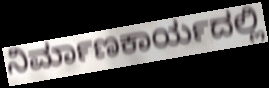
ನಿರ್ಮಾಣಕಾರ್ಯದಲ್ಲಿ